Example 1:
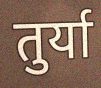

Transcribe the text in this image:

तुर्या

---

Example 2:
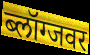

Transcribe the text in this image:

ब्लॉग्जवर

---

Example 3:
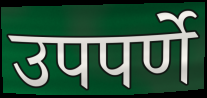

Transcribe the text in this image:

उपपर्णे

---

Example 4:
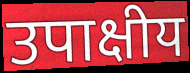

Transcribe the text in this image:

उपाक्षीय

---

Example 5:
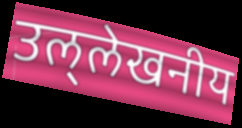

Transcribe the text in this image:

उल्लेखनीय